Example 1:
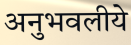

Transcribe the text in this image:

अनुभवलीये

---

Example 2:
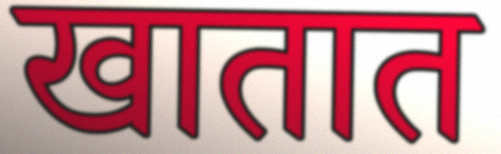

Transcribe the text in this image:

खातात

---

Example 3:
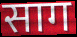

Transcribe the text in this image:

साग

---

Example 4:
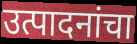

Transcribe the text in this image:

उत्पादनांचा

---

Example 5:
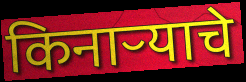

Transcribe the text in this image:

किनाऱ्याचे